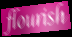
flourish